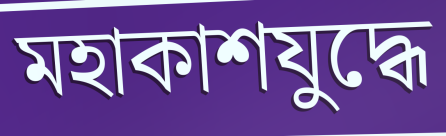
মহাকাশযুদ্ধে